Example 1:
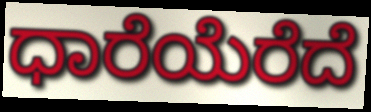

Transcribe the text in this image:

ಧಾರೆಯೆರೆದೆ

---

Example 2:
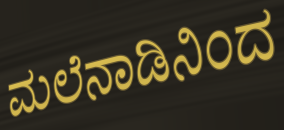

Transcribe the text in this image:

ಮಲೆನಾಡಿನಿಂದ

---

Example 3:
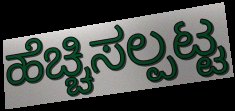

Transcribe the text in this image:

ಹೆಚ್ಚಿಸಲ್ಪಟ್ಟ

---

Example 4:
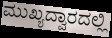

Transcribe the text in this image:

ಮುಖ್ಯದ್ವಾರದಲ್ಲಿ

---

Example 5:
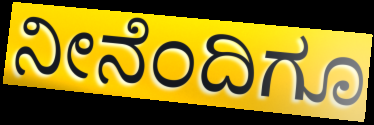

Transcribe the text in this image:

ನೀನೆಂದಿಗೂ